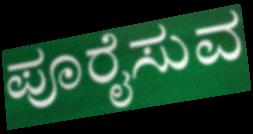
ಪೂರೈಸುವ